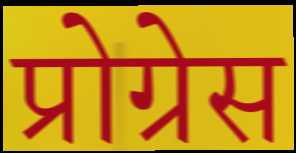
प्रोग्रेस